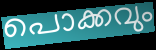
പൊക്കവും